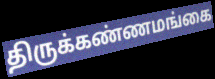
திருக்கண்ணமங்கை